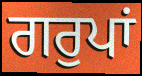
ਗਰੁਪਾਂ